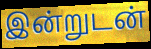
இன்றுடன்